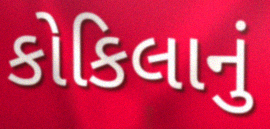
કોકિલાનું